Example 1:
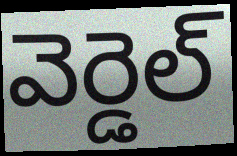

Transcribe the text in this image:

వెర్డెల్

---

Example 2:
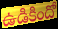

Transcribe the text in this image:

ఉడికిందో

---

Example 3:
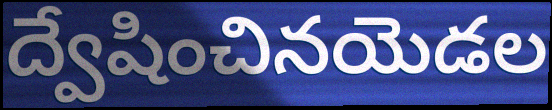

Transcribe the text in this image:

ద్వేషించినయెడల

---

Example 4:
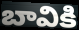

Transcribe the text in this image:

బావికి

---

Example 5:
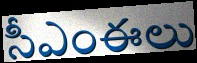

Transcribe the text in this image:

సీఎంఈలు